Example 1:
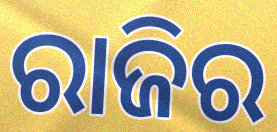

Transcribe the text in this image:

ରାଜିର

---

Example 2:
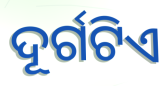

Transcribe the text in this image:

ଦୂର୍ଗଟିଏ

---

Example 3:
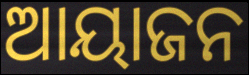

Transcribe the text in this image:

ଆୟାଜନ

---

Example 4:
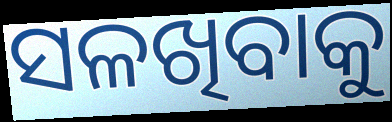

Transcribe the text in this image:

ସଳଖିବାକୁ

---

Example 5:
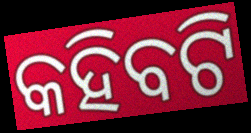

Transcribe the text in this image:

କହିବଟି